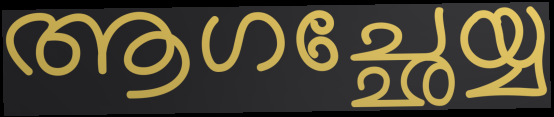
ആഗച്ഛേയ്യ